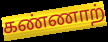
கண்ணாற்